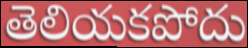
తెలియకపోదు